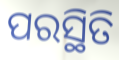
ପରସ୍ଥିତି